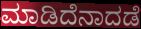
ಮಾಡಿದೆನಾದಡೆ